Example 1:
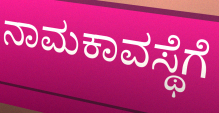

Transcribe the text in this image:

ನಾಮಕಾವಸ್ಥೆಗೆ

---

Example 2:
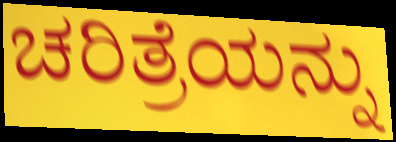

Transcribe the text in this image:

ಚರಿತ್ರೆಯನ್ನು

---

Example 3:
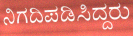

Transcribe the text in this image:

ನಿಗದಿಪಡಿಸಿದ್ದರು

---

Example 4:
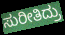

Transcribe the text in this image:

ಸುರೀತಿದ್ರು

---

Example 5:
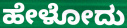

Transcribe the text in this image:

ಹೇಳೋದು